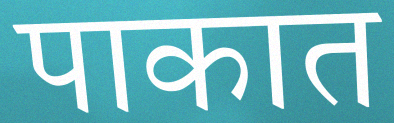
पाकात